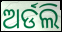
ଅର୍ଡଲି